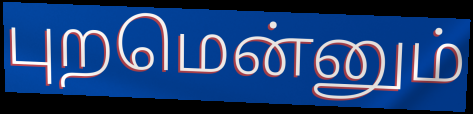
புறமென்னும்